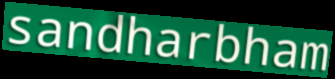
sandharbham